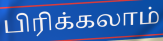
பிரிக்கலாம்